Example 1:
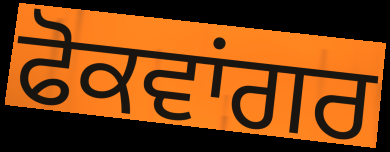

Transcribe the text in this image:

ਫੋਕਵਾਂਗਰ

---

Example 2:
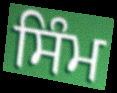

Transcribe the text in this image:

ਸਿੰਮ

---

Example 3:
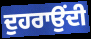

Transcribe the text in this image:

ਦੁਹਰਾਉਂਦੀ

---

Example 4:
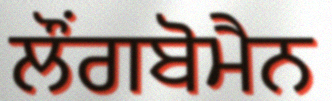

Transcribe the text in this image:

ਲੌਂਗਬੋਮੈਨ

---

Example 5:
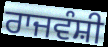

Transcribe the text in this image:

ਰਾਜਵੰਸ਼ੀ